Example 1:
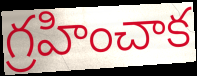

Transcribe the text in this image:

గ్రహించాక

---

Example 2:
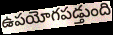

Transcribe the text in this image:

ఉపయోగపడ్తుంది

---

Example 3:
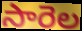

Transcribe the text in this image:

సారెల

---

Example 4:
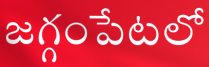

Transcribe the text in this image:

జగ్గంపేటలో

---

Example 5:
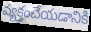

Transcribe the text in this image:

వ్యక్తంచేయడానికి